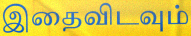
இதைவிடவும்